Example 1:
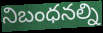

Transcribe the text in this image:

నిబంధనల్ని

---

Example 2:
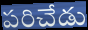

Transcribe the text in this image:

పరిచేడు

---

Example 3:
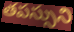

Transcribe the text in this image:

తపస్సుని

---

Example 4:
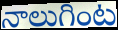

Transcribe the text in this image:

నాలుగింట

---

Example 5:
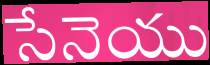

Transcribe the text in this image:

సేనెయు